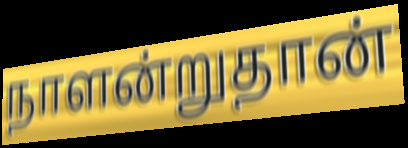
நாளன்றுதான்